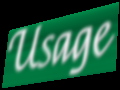
Usage